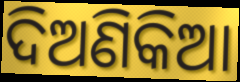
ଦିଅଣିକିଆ